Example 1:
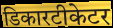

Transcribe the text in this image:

डिकारटीकेटर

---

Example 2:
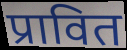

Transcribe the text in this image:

प्रावित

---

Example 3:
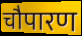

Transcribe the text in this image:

चौपारण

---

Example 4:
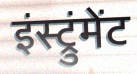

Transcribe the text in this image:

इंस्ट्रुंमेंट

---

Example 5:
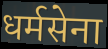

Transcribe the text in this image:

धर्मसेना